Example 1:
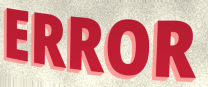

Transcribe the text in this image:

ERROR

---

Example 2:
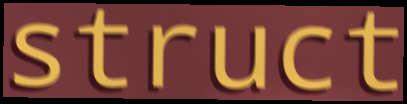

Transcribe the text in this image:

struct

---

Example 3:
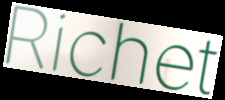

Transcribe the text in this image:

Richet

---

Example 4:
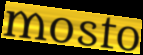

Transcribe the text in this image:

mosto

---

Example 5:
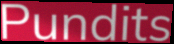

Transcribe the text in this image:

Pundits